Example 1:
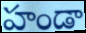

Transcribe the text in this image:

హండా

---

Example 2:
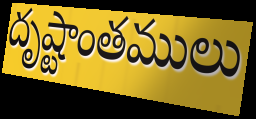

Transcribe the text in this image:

దృష్టాంతములు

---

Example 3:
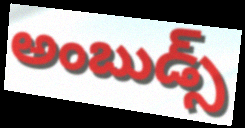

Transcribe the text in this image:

అంబుడ్స్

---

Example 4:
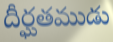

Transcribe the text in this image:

దీర్ఘతముడు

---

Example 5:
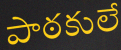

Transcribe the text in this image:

పాఠకులే